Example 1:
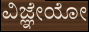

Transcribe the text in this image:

ವಿಜ್ಞೇಯೋ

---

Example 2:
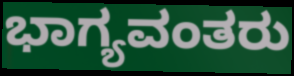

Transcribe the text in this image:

ಭಾಗ್ಯವಂತರು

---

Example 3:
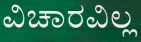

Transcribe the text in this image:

ವಿಚಾರವಿಲ್ಲ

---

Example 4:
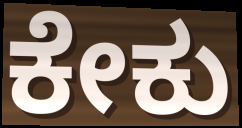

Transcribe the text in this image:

ಕೇಕು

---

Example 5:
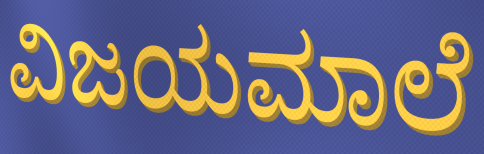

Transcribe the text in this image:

ವಿಜಯಮಾಲೆ